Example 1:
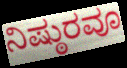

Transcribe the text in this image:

ನಿಷ್ಠುರವೂ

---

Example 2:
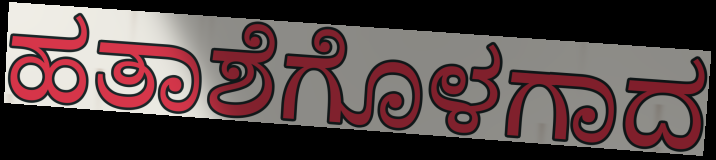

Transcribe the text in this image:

ಹತಾಶೆಗೊಳಗಾದ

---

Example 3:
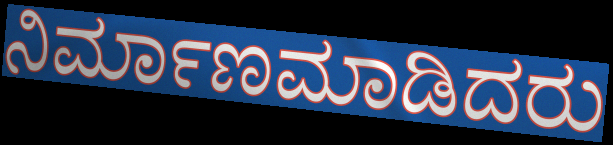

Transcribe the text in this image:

ನಿರ್ಮಾಣಮಾಡಿದರು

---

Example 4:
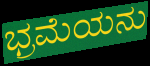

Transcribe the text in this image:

ಭ್ರಮೆಯನು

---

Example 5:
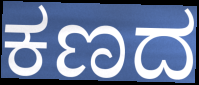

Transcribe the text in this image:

ಕಣದ